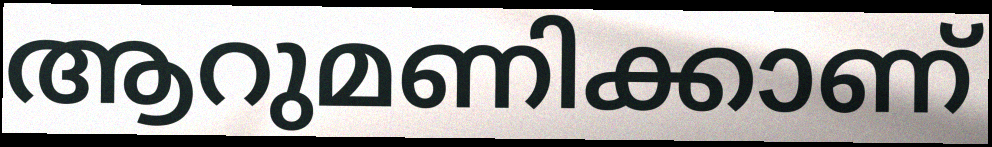
ആറുമണിക്കാണ്